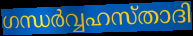
ഗന്ധർവ്വഹസ്താദി